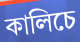
কালিচে